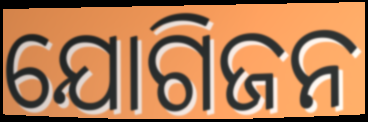
ଯୋଗିଜନ